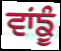
ਵਾਂਙੂੰ